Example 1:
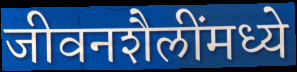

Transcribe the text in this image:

जीवनशैलींमध्ये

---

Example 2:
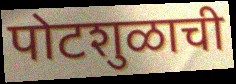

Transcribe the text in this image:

पोटशुळाची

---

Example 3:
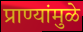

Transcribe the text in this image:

प्राण्यांमुळे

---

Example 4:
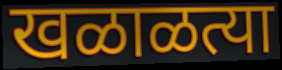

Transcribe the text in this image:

खळाळत्या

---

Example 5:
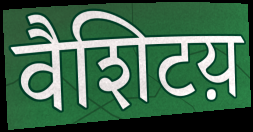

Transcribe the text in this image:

वैशिटय़